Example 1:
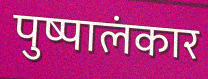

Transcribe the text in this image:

पुष्पालंकार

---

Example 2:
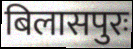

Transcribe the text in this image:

बिलासपुरः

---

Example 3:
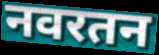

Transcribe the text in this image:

नवरतन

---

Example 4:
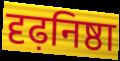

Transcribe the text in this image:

दृढ़निष्ठा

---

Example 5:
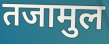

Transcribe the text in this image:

तजामुल